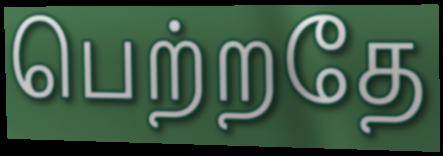
பெற்றதே